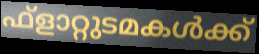
ഫ്ളാറ്റുടമകൾക്ക്